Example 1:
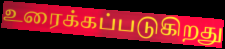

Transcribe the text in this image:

உரைக்கப்படுகிறது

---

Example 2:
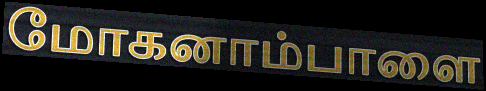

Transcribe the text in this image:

மோகனாம்பாளை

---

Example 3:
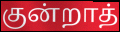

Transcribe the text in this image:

குன்றாத்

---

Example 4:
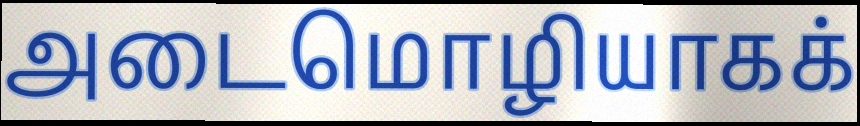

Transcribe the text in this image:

அடைமொழியாகக்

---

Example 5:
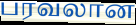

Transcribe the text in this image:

பரவலான